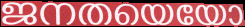
ജനതയെയോ